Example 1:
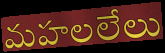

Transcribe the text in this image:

మహలలేలు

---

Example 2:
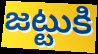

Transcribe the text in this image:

జట్టుకి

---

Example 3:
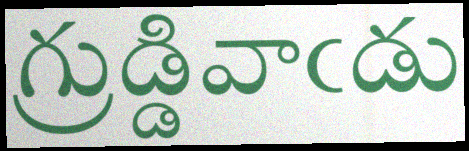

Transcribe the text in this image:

గ్రుడ్డివాఁడు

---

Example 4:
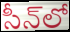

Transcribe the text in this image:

సీన్‌లో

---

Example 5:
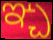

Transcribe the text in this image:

ఞ్చ